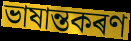
ভাষান্তকৰণ